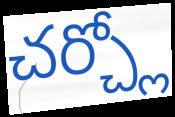
చర్చ్లో